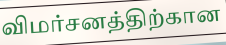
விமர்சனத்திற்கான